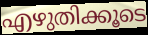
എഴുതിക്കൂടെ